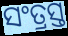
ସଂତ୍ରସ୍ତ